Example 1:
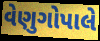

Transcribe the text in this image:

વેણુગોપાલે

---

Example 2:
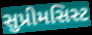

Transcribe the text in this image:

સુપ્રીમસિસ્ટ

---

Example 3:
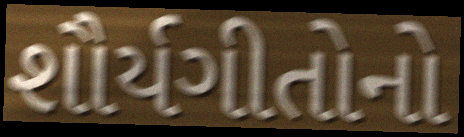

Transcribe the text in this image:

શૌર્યગીતોનો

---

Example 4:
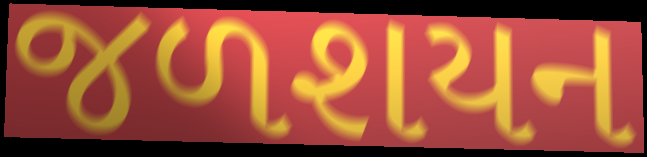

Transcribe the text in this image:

જળશયન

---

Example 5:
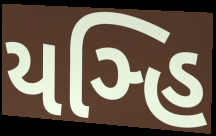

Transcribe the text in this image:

યઞ્હિ